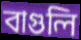
বাগুলি